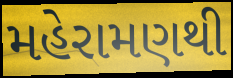
મહેરામણથી